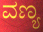
ವಣ್ಯ